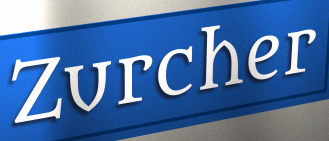
Zurcher